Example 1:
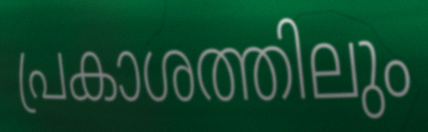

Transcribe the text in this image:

പ്രകാശത്തിലും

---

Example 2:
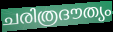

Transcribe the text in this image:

ചരിത്രദൗത്യം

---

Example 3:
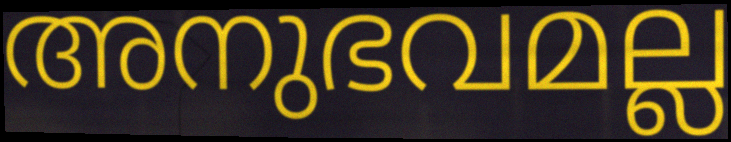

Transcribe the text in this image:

അനുഭവമല്ല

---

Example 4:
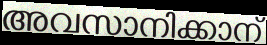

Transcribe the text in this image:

അവസാനിക്കാന്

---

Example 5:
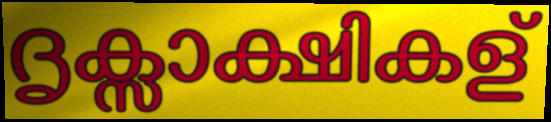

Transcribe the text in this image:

ദൃക്സാക്ഷികള്